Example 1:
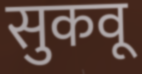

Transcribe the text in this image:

सुकवू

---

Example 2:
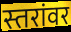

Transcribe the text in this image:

स्तरांवर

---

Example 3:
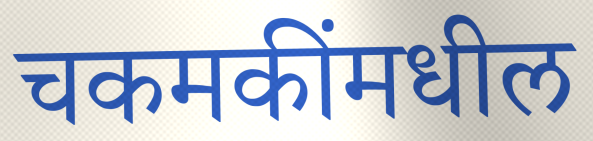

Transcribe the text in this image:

चकमकींमधील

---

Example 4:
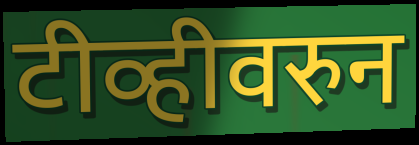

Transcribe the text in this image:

टीव्हीवरुन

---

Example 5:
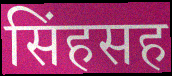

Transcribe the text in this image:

सिंहसह